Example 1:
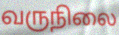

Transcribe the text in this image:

வருநிலை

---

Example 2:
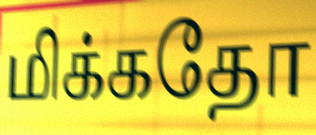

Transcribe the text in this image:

மிக்கதோ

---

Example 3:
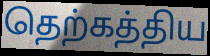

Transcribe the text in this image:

தெற்கத்திய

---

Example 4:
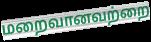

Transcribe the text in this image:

மறைவானவற்றை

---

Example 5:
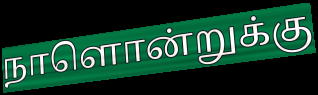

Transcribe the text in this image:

நாளொன்றுக்கு